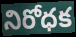
నిరోధక